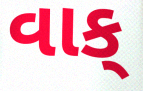
વાક્